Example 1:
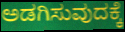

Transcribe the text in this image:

ಅಡಗಿಸುವುದಕ್ಕೆ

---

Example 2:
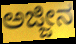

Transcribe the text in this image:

ಅಜ್ಜೀನ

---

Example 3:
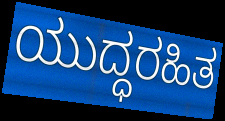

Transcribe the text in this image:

ಯುದ್ಧರಹಿತ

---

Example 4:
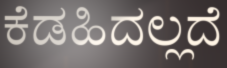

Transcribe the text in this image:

ಕೆಡಹಿದಲ್ಲದೆ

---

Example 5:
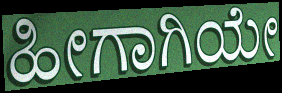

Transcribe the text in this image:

ಹೀಗಾಗಿಯೇ